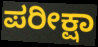
ಪರೀಕ್ಷಾ